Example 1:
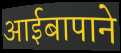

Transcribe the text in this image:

आईबापाने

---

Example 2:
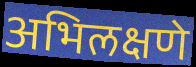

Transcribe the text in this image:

अभिलक्षणे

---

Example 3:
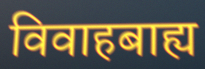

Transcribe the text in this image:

विवाहबाह्य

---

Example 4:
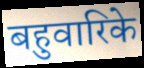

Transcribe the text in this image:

बहुवारिके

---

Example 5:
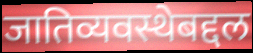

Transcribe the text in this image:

जातिव्यवस्थेबद्दल